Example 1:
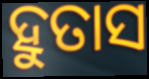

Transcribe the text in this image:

ହୁତାସ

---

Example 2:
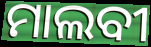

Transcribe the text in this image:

ମାଲବୀ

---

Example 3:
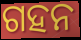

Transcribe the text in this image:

ଗହନ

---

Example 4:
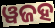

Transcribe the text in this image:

ୱଜହ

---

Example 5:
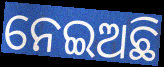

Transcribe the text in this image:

ନେଇଅଛି